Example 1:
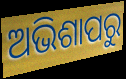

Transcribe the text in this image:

ଅଭିଶାପରୁ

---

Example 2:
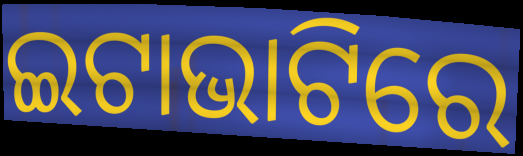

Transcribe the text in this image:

ଇଟାଭାଟିରେ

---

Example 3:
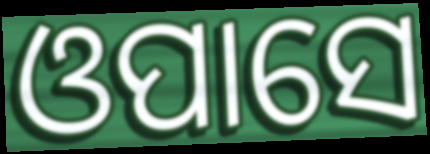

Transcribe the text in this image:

ଓପାସେ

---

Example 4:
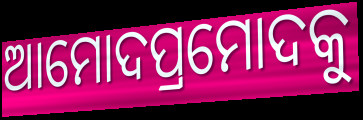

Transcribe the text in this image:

ଆମୋଦପ୍ରମୋଦକୁ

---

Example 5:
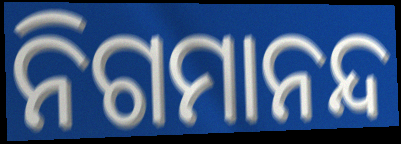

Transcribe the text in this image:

ନିଗମାନନ୍ଦ